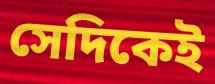
সেদিকেই